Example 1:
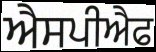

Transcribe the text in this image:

ਐਸਪੀਐਫ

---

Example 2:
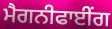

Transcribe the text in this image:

ਮੈਗਨੀਫਾਈਂਗ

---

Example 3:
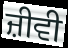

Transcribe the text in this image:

ਜ਼ੀਵੀ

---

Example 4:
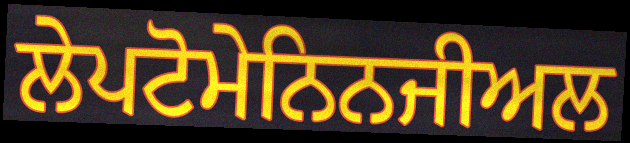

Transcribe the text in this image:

ਲੇਪਟੋਮੇਨਿਨਜੀਅਲ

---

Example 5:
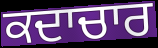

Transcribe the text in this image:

ਕਦਾਚਾਰ